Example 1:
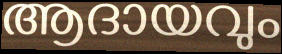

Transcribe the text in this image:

ആദായവും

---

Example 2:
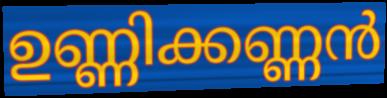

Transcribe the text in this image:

ഉണ്ണിക്കണ്ണൻ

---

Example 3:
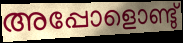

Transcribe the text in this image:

അപ്പോളൊണ്ടു്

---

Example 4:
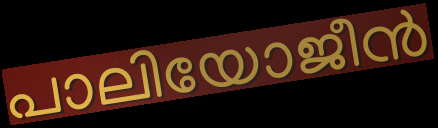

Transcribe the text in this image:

പാലിയോജീൻ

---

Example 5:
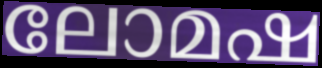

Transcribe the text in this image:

ലോമഷ